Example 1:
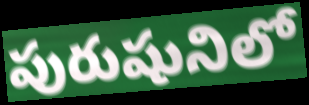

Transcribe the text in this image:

పురుషునిలో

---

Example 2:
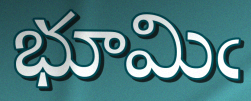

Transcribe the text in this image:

భూమిఁ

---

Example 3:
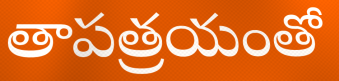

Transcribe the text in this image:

తాపత్రయంతో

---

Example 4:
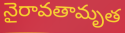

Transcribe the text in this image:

నైరావతామృత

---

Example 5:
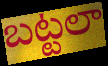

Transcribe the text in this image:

బట్టలా